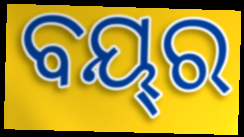
ବୟ୍‌ର